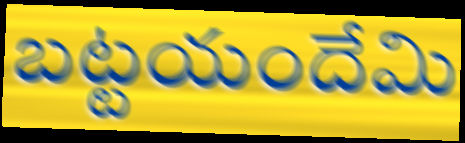
బట్టయందేమి